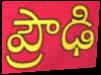
ప్రౌఢి